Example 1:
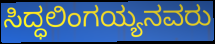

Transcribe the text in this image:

ಸಿದ್ಧಲಿಂಗಯ್ಯನವರು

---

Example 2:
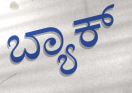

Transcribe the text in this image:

ಬ್ಯಾಕ್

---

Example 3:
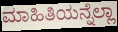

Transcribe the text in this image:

ಮಾಹಿತಿಯನ್ನೆಲ್ಲಾ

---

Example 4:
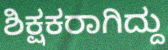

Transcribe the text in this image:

ಶಿಕ್ಷಕರಾಗಿದ್ದು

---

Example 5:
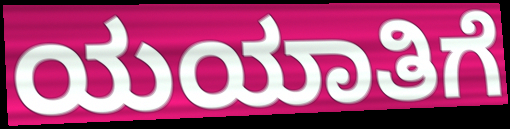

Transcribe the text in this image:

ಯಯಾತಿಗೆ